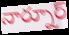
నార్నూర్